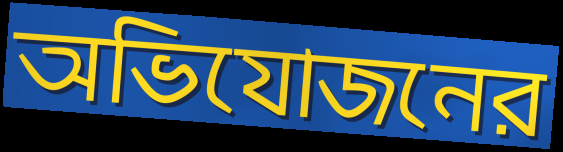
অভিযোজনের